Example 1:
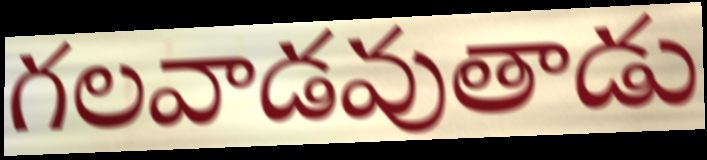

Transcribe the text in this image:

గలవాడవుతాడు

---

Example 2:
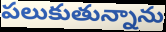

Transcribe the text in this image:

పలుకుతున్నాను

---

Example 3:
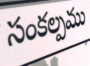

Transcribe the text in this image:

సంకల్పము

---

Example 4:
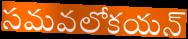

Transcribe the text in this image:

సమవలోకయన్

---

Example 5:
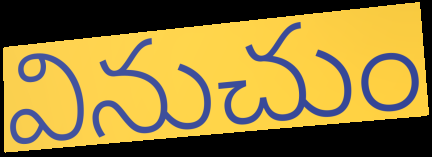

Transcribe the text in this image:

వినుచుం